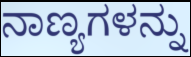
ನಾಣ್ಯಗಳನ್ನು